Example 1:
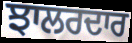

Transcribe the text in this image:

ਝਾਲਰਦਾਰ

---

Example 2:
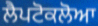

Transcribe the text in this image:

ਲੈਪਟੋਕਲੋਆ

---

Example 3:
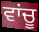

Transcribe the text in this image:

ਵਾਂਚੂ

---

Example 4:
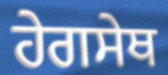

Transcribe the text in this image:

ਹੇਗਸੇਥ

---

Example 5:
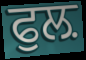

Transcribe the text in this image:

ਫੁਲ਼